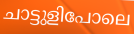
ചാട്ടുളിപോലെ